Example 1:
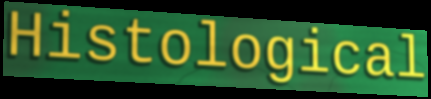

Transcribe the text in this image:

Histological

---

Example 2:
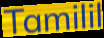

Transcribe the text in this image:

Tamilil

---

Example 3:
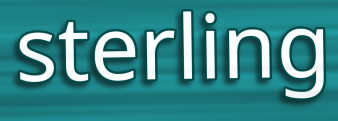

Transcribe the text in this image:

sterling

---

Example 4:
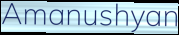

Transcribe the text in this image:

Amanushyan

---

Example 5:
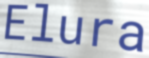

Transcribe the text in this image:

Elura